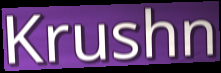
Krushn